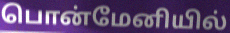
பொன்மேனியில்